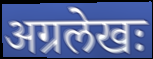
अग्रलेखः